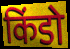
किंडो